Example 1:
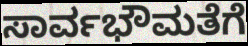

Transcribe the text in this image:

ಸಾರ್ವಭೌಮತೆಗೆ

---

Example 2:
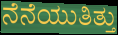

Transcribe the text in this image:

ನೆನೆಯುತಿತ್ತು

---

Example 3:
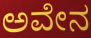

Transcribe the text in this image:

ಅವೇನ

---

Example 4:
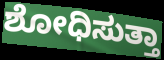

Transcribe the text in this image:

ಶೋಧಿಸುತ್ತಾ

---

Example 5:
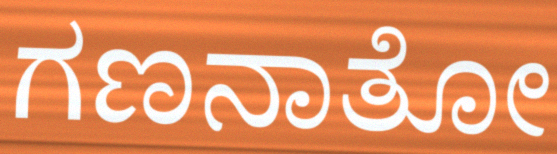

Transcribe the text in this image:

ಗಣನಾತೋ